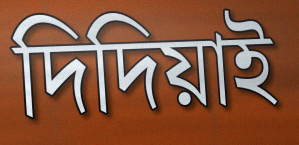
দিদিয়াই